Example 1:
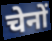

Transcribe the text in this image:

चेनों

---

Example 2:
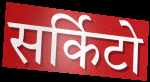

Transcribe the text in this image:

सर्किटो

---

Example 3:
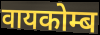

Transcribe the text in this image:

वायकोम्ब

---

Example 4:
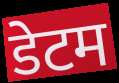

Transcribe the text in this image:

डेटम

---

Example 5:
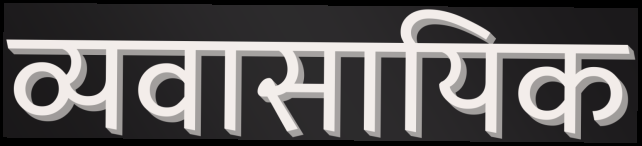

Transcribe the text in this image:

व्यवासायिक